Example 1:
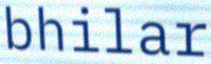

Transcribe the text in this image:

bhilar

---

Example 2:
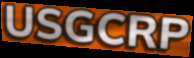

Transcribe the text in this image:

USGCRP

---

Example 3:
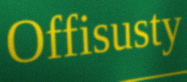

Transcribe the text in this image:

Offisusty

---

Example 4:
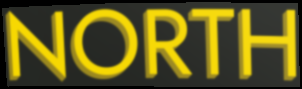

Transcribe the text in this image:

NORTH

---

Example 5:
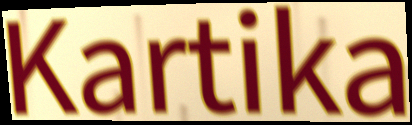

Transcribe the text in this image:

Kartika